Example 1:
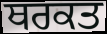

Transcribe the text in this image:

ਥਰਕਤ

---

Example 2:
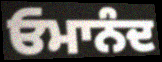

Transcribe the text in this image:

ਓਮਾਨੰਦ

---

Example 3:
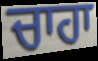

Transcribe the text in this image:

ਚਾਹਾ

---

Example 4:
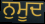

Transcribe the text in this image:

ਨੁਮੂਦ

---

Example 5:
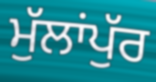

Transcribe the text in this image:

ਮੁੱਲਾਂਪੁੱਰ